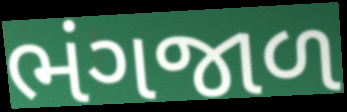
ભંગજાળ